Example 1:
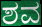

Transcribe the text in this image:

ಶವ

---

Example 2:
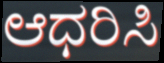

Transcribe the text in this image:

ಆಧರಿಸಿ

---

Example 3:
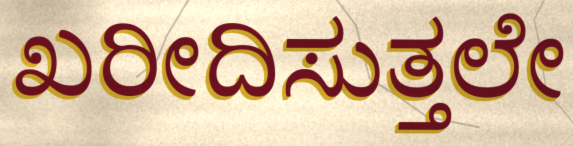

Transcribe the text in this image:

ಖರೀದಿಸುತ್ತಲೇ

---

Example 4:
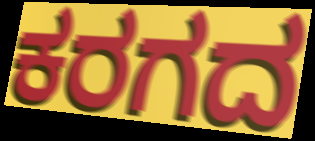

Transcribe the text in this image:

ಕರಗದ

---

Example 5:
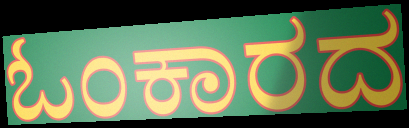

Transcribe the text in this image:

ಓಂಕಾರದ